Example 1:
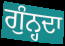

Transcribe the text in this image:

ਗੁੰਨ੍ਹਦਾ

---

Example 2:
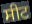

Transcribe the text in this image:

ਸੀਟ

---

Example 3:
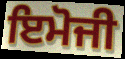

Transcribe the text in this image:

ਇਮੋਜੀ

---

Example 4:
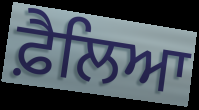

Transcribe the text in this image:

ਫ਼ੈਲਿਆ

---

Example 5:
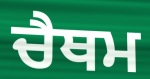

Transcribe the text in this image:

ਚੈਥਮ